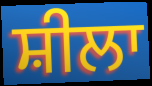
ਸ਼ੀਲਾ